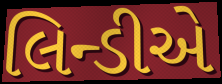
લિન્ડીએ